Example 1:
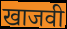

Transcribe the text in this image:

खाजवी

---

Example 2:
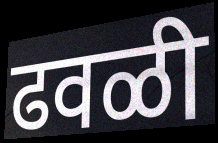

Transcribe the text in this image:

ढवळी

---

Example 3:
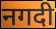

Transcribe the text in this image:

नगदी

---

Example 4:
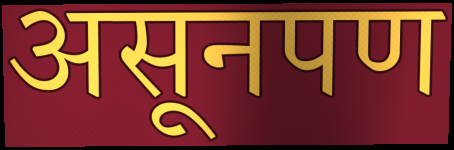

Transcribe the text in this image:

असूनपण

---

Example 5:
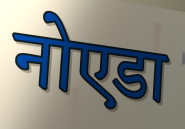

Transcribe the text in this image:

नोएडा